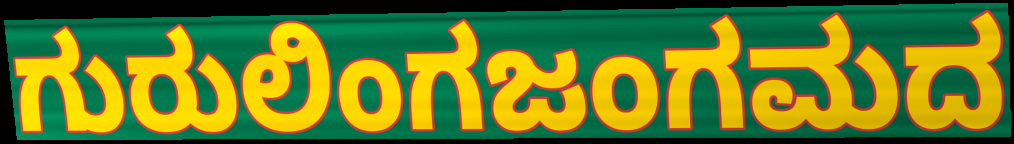
ಗುರುಲಿಂಗಜಂಗಮದ